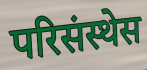
परिसंस्थेस